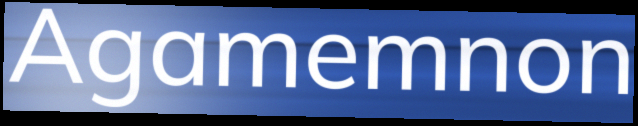
Agamemnon